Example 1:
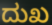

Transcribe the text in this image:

ದುಖ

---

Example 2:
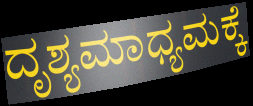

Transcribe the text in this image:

ದೃಶ್ಯಮಾಧ್ಯಮಕ್ಕೆ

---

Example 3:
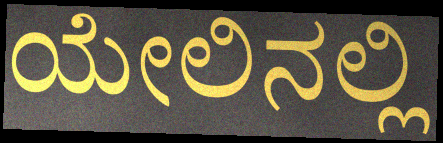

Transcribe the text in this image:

ಯೇಲಿನಲ್ಲಿ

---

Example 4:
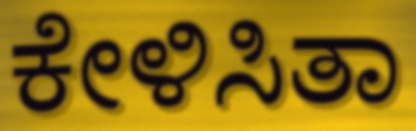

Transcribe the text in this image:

ಕೇಳಿಸಿತಾ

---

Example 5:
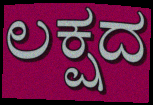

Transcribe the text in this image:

ಲಕ್ಷದ